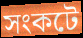
সংকটে